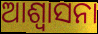
ଆଶ୍ଵାସନା